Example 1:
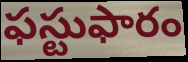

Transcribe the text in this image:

ఫస్టుఫారం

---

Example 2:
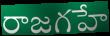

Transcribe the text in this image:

రాజగహే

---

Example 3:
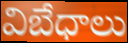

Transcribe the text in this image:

విబేధాలు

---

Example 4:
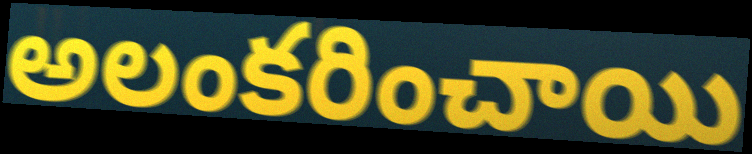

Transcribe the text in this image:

అలంకరించాయి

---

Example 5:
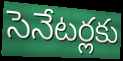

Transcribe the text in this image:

సెనేటర్లకు